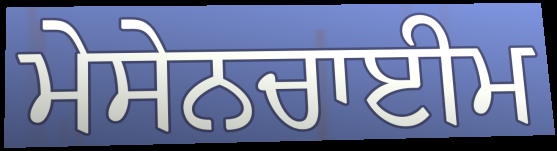
ਮੇਸੇਨਚਾਈਮ